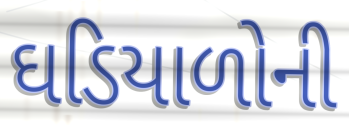
ઘડિયાળોની